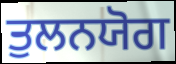
ਤੁਲਨਯੋਗ